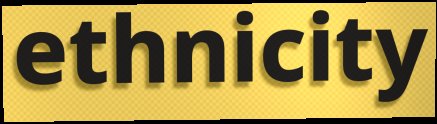
ethnicity